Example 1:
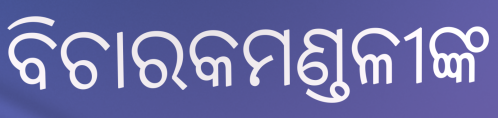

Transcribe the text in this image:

ବିଚାରକମଣ୍ଡଳୀଙ୍କ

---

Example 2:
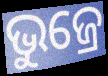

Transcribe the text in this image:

ଭୁଜ୍ରେ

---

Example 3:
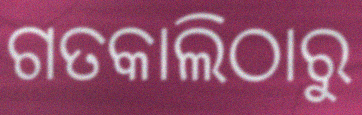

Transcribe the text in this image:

ଗତକାଲିଠାରୁ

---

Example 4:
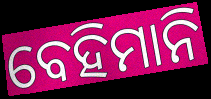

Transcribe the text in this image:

ବେହିମାନି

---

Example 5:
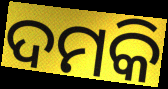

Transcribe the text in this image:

ଦମକି